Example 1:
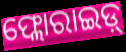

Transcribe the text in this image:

ଫ୍ଲୋରାଇଡ଼୍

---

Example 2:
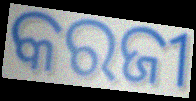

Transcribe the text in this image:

କରଜୀ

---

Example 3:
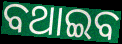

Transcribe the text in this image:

ବଥାଇବ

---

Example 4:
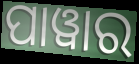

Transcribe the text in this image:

ପାୱାର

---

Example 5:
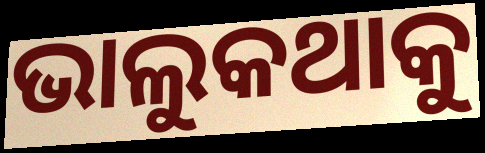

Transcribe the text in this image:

ଭାଲୁକଥାକୁ